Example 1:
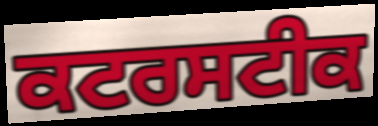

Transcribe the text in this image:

ਕਟਰਸਟੀਕ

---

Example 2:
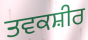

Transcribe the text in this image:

ਤਵਕਸ਼ੀਰ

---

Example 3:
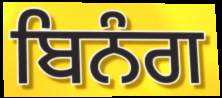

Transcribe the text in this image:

ਬਿਨੰਗ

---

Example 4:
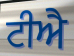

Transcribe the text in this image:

ਟੀਐ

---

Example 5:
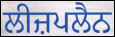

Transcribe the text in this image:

ਲੀਜ਼ਪਲੈਨ